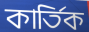
কাৰ্তিক